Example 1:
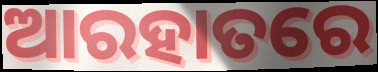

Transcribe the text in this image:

ଆରହାତରେ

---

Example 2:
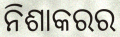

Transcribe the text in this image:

ନିଶାକରର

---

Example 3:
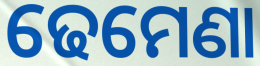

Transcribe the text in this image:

ଢେମେଣା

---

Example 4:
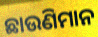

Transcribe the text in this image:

ଛାଉଣିମାନ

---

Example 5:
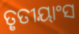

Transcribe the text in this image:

ତୃତୀୟାଂସ